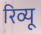
रिव्यू